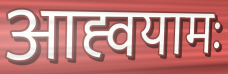
आह्वयामः